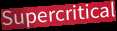
Supercritical